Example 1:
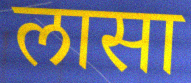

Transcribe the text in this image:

लासा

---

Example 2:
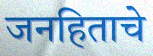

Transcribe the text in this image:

जनहिताचे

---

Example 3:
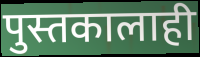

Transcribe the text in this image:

पुस्तकालाही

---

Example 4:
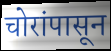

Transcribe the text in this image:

चोरांपासून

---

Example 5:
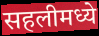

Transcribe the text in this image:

सहलीमध्ये